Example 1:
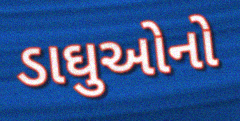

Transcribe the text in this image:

ડાઘુઓનો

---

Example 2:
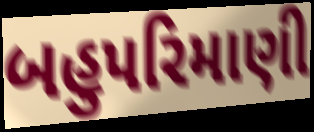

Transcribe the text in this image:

બહુપરિમાણી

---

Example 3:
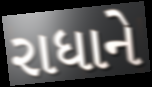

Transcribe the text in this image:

રાધાને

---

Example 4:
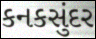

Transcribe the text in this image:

કનકસુંદર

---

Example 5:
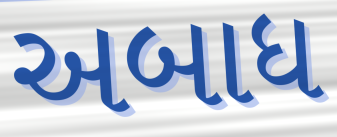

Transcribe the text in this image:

અબાધ